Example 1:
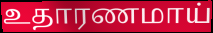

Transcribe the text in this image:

உதாரணமாய்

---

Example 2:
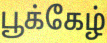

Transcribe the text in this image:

பூக்கேழ்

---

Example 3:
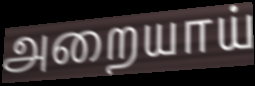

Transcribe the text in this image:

அறையாய்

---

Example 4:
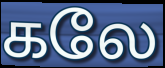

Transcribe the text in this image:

கலே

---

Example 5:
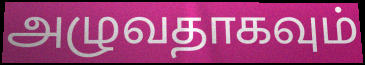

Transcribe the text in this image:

அழுவதாகவும்